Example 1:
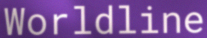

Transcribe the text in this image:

Worldline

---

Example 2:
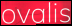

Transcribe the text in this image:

ovalis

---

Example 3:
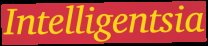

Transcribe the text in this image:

Intelligentsia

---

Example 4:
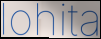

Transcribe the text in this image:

lohita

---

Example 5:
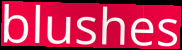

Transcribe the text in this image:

blushes